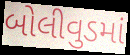
બોલીવુડમાં